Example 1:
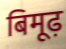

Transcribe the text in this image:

बिमूढ़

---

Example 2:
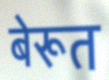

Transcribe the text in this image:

बेरूत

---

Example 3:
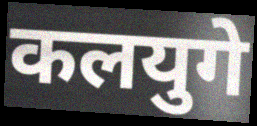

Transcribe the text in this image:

कलयुगे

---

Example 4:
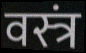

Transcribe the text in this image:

वस्त्रं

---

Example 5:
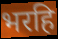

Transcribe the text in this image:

भरहि